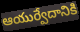
ఆయుర్వేదానికి